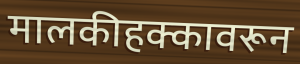
मालकीहक्कावरून